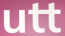
utt